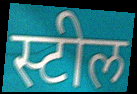
स्टील